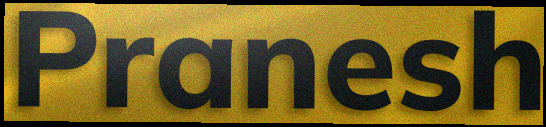
Pranesh